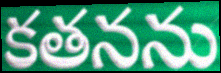
కతనను